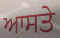
ਆਸਤੇ